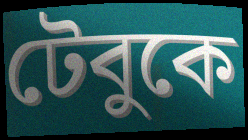
টেবুকে